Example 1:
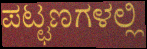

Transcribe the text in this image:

ಪಟ್ಟಣಗಳಲ್ಲಿ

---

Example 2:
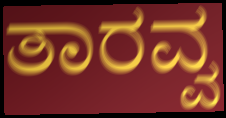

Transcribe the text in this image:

ತಾರವ್ವ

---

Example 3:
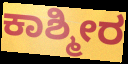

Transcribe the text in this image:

ಕಾಶ್ಮೀರ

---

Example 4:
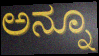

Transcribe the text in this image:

ಅನ್ನೂ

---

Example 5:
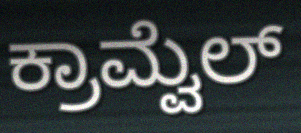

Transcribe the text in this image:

ಕ್ರಾಮ್ವೆಲ್